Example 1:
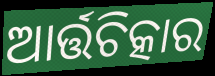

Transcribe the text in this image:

ଆର୍ତ୍ତଚିତ୍କାର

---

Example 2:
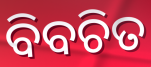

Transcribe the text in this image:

ବିବଚିତ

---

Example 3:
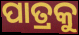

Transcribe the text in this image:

ପାତ୍ରକୁ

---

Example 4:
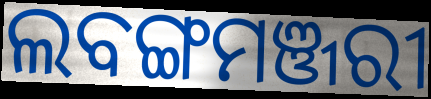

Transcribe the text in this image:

ଲବଙ୍ଗମଞ୍ଜରୀ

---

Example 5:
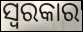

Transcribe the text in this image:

ସ୍ୱରକାର